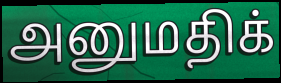
அனுமதிக்